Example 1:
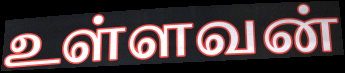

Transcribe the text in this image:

உள்ளவன்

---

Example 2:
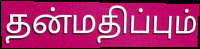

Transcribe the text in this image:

தன்மதிப்பும்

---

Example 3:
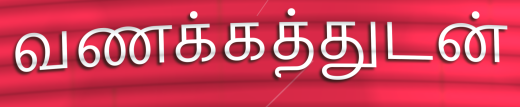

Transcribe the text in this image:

வணக்கத்துடன்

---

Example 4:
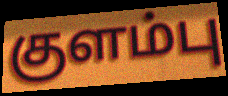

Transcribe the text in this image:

குளம்பு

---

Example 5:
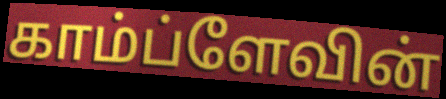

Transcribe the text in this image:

காம்ப்ளேவின்